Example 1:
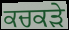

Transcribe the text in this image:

ਕਚਕੜੇ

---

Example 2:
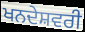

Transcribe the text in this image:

ਖਨਦੇਸ਼ਵਰੀ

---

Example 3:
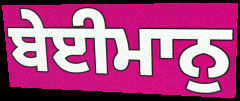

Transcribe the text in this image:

ਬੇਈਮਾਨੁ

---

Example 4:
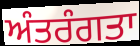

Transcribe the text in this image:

ਅੰਤਰੰਗਤਾ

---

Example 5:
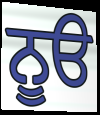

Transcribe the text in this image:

ਨੂੳ